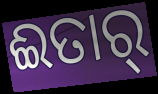
ଈତାର୍